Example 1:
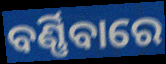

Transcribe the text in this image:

ବର୍ଣ୍ଣିବାରେ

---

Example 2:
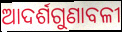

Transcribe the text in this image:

ଆଦର୍ଶଗୁଣାବଳୀ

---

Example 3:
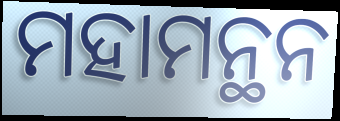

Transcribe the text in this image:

ମହାମନ୍ଥନ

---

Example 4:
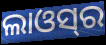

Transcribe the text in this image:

ଲାଓସ୍‌ର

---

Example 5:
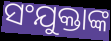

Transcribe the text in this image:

ସଂଯୁକ୍ତାଙ୍କ